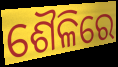
ଶୈଳିରେ